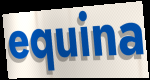
equina